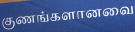
குணங்களானவை